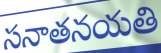
సనాతనయతి